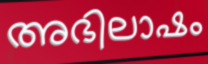
അഭിലാഷം